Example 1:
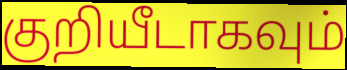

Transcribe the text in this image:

குறியீடாகவும்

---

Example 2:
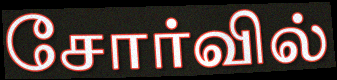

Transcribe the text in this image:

சோர்வில்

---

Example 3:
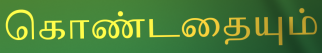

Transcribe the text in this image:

கொண்டதையும்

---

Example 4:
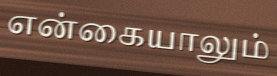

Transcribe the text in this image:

என்கையாலும்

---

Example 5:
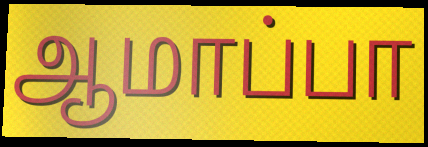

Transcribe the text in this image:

ஆமாப்பா